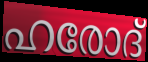
ഹരോദ്